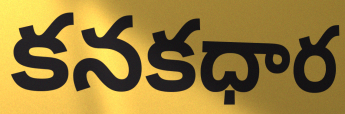
కనకధార